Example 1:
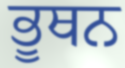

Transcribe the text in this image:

ਭੂਥਨ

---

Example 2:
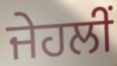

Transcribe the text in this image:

ਜੇਹਲੀਂ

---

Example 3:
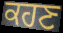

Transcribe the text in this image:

ਕਹਣ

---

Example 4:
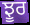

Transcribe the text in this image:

ਝੂਰ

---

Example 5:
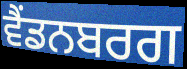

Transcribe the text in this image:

ਵੈਂਡਨਬਰਗ